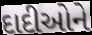
દાદીઓને